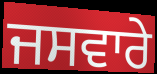
ਜਸਵਾਰੇ